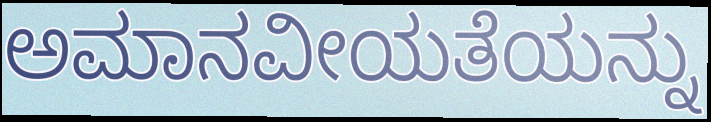
ಅಮಾನವೀಯತೆಯನ್ನು